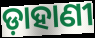
ଡ଼ାହାଣୀ